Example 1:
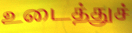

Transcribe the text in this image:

உடைத்துச்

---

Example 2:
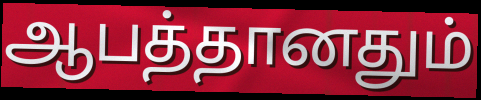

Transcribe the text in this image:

ஆபத்தானதும்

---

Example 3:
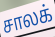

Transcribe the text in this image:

சாலக்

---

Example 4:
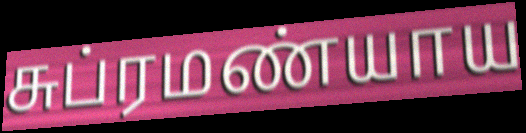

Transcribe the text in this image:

சுப்ரமண்யாய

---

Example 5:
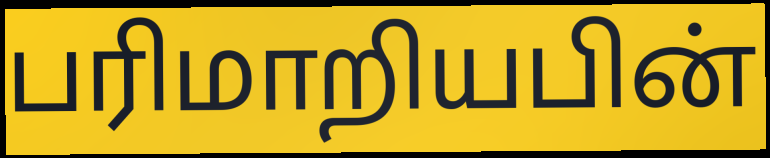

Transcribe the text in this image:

பரிமாறியபின்